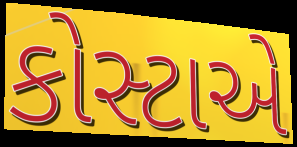
કોસ્ટાએ